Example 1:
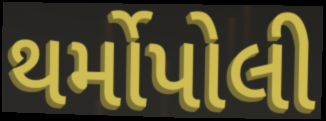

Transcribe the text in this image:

થર્મોપોલી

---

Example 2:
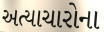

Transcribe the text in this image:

અત્યાચારોના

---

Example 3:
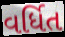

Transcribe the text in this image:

વર્ધિત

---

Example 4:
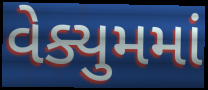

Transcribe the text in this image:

વેક્યુમમાં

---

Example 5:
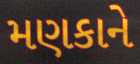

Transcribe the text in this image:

મણકાને